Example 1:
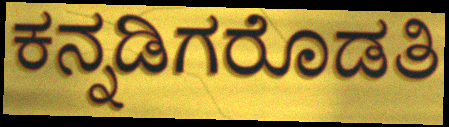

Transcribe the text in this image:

ಕನ್ನಡಿಗರೊಡತಿ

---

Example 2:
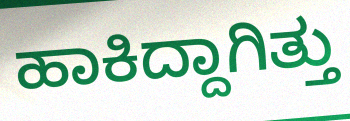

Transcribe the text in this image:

ಹಾಕಿದ್ದಾಗಿತ್ತು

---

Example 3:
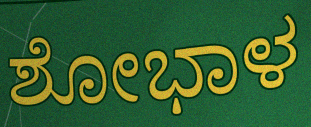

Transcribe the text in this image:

ಶೋಭಾಳ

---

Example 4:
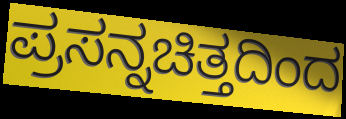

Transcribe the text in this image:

ಪ್ರಸನ್ನಚಿತ್ತದಿಂದ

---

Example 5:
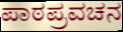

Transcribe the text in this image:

ಪಾಠಪ್ರವಚನ